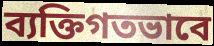
ব্যক্তিগতভাবে